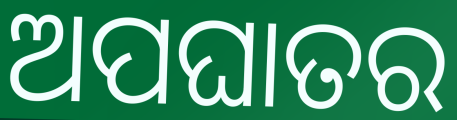
ଅପଘାତର